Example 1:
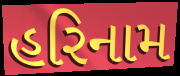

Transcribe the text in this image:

હરિનામ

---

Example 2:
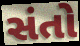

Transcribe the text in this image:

સંતો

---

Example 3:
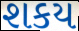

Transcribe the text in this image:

શકય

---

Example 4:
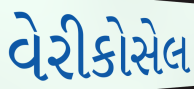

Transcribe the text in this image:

વેરીકોસેલ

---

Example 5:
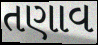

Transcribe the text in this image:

તણાવ